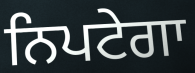
ਨਿਪਟੇਗਾ